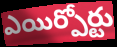
ఎయిర్పోర్టు